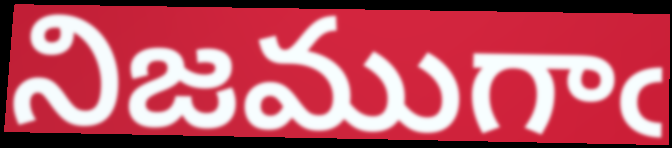
నిజముగాఁ